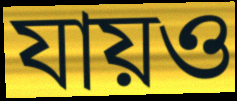
যায়ও